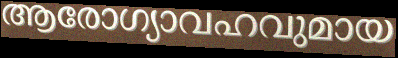
ആരോഗ്യാവഹവുമായ